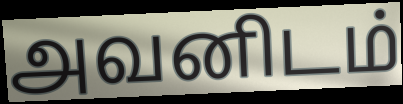
அவனிடம்